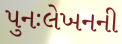
પુનઃલેખનની